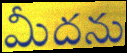
మీదను